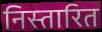
निस्तारित